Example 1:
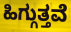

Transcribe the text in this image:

ಹಿಗ್ಗುತ್ತವೆ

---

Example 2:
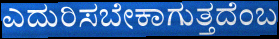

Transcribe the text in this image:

ಎದುರಿಸಬೇಕಾಗುತ್ತದೆಂಬ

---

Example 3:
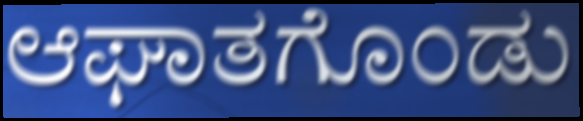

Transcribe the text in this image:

ಆಘಾತಗೊಂಡು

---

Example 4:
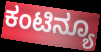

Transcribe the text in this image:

ಕಂಟಿನ್ಯೂ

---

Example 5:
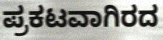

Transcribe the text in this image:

ಪ್ರಕಟವಾಗಿರದ